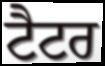
ਟੈਟਰ